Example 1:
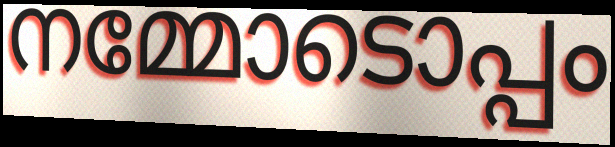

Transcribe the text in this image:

നമ്മോടൊപ്പം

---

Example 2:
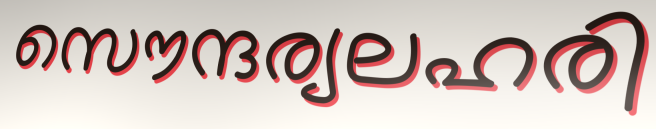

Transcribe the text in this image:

സൌന്ദര്യലഹരി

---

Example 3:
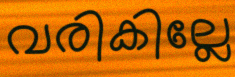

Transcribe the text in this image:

വരികില്ലേ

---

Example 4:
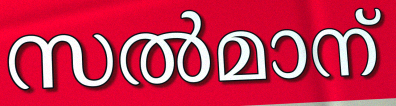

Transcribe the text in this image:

സൽമാന്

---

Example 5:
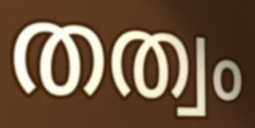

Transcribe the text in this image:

തത്വം